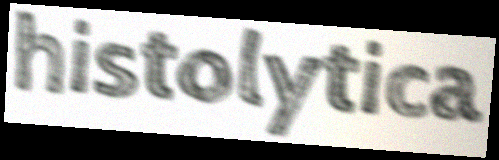
histolytica